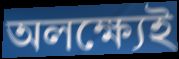
অলক্ষ্যেই